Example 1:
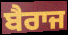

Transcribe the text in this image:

ਬੈਰਾਜ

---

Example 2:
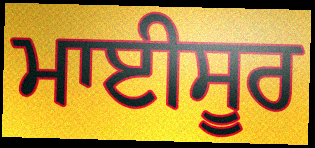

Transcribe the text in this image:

ਮਾਈਸੂਰ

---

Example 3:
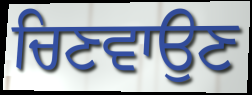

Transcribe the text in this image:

ਚਿਣਵਾਉਣ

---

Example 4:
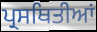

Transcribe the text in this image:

ਪ੍ਰਸਥਿਤੀਆਂ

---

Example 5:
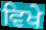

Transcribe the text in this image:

ਵਿਖੇ